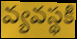
వ్యవస్థకి